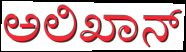
ಅಲಿಖಾನ್